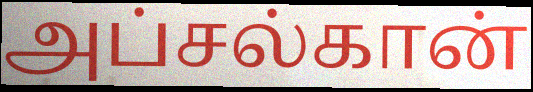
அப்சல்கான்